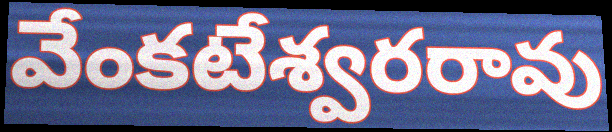
వేంకటేశ్వరరావు